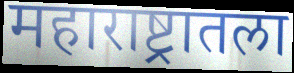
महाराष्ट्रातला